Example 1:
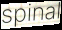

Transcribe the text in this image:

spinal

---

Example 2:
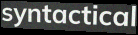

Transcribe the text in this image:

syntactical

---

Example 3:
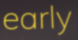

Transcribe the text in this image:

early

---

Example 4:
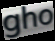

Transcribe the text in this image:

gho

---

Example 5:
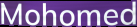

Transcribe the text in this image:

Mohomed